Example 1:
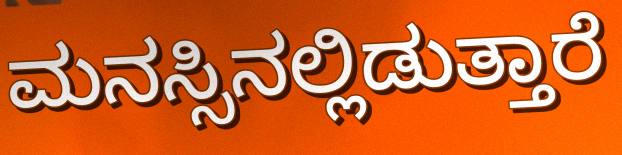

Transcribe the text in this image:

ಮನಸ್ಸಿನಲ್ಲಿಡುತ್ತಾರೆ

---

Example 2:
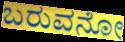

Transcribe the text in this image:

ಬರುವನೋ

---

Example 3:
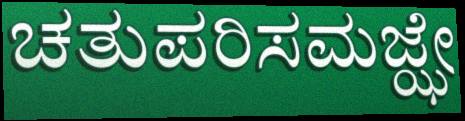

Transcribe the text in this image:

ಚತುಪರಿಸಮಜ್ಝೇ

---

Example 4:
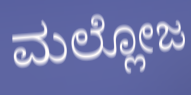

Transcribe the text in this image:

ಮಲ್ಲೋಜ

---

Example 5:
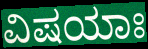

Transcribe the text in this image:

ವಿಷಯಾಃ